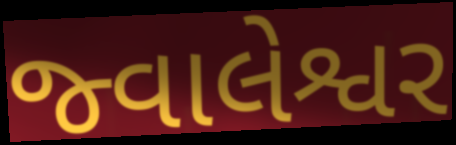
જ્વાલેશ્વર